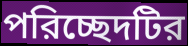
পরিচ্ছেদটির